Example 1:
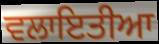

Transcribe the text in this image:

ਵਲਾਇਤੀਆ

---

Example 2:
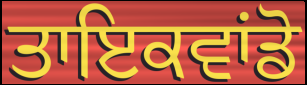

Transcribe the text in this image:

ਤਾਇਕਵਾਂਡੋ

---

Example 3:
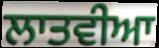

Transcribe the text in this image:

ਲਾਤਵੀਆ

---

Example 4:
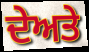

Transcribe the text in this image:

ਦੇਅਤੇ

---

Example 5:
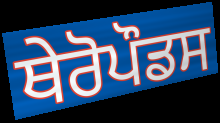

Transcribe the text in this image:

ਥੇਰੋਪੌਡਸ